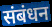
संबंधन